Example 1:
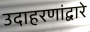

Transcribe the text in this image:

उदाहरणांद्वारे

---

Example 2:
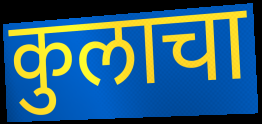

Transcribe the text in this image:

कुलाचा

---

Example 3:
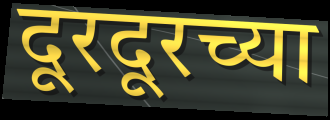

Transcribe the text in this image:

दूरदूरच्या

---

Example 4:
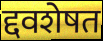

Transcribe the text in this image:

द्दवशेषत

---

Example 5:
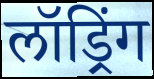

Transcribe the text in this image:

लॉड्रिंग